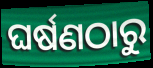
ଘର୍ଷଣଠାରୁ